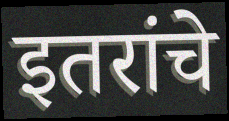
इतरांचे